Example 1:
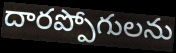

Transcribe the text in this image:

దారప్పోగులను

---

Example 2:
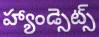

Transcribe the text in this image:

హ్యాండ్సెట్స్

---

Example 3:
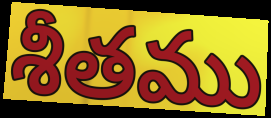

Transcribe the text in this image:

శీతము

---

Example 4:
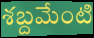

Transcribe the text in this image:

శబ్దమేంటి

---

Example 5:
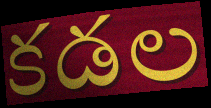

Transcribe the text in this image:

కడల